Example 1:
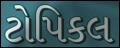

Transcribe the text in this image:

ટોપિકલ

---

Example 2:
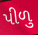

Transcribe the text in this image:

પીળુ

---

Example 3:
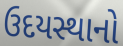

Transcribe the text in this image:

ઉદયસ્થાનો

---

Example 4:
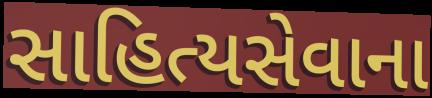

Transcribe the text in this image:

સાહિત્યસેવાના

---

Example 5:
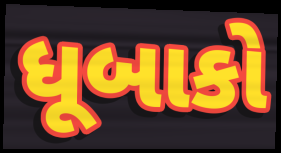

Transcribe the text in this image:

ધૂબાકો